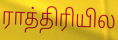
ராத்திரியில